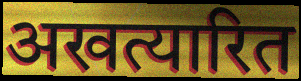
अखत्यारित